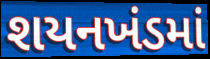
શયનખંડમાં